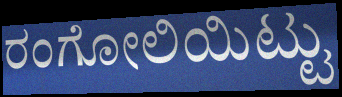
ರಂಗೋಲಿಯಿಟ್ಟು